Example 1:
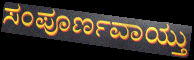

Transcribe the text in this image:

ಸಂಪೂರ್ಣವಾಯ್ತು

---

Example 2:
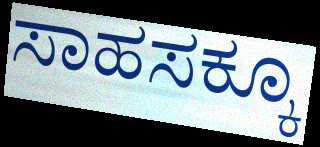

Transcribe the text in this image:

ಸಾಹಸಕ್ಕೂ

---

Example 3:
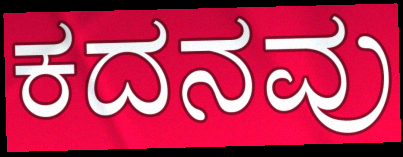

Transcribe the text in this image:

ಕದನವು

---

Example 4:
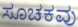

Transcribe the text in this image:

ಸೂಚಕವು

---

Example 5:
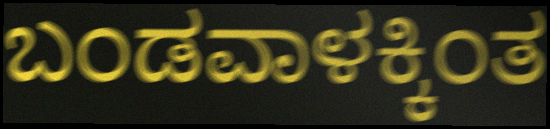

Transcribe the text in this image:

ಬಂಡವಾಳಕ್ಕಿಂತ